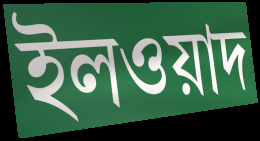
ইলওয়াদ